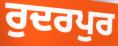
ਰੁਦਰਪੁਰ